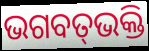
ଭଗବତ୍‌ଭକ୍ତି